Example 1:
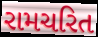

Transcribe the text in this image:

રામચરિત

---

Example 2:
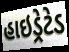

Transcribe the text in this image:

હાઇડ્રેટેડ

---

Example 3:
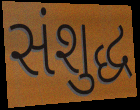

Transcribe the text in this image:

સંશુદ્ધ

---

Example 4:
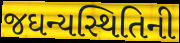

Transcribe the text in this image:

જઘન્યસ્થિતિની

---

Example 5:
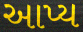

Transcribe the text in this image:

આપ્ય